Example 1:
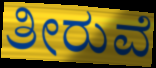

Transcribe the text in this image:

ತೀರುವೆ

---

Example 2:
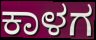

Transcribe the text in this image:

ಕಾಳಗ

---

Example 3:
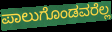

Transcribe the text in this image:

ಪಾಲುಗೊಂಡವರೆಲ್ಲ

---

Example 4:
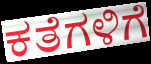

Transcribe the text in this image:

ಕತೆಗಳಿಗೆ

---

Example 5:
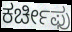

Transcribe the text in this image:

ಕರ್ಚೀಫು